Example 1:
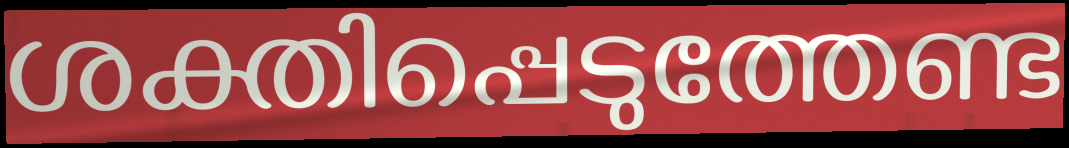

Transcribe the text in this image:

ശക്തിപ്പെടുത്തേണ്ട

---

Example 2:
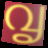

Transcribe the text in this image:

വൃ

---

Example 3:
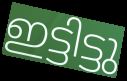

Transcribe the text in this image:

ഇട്ടിട്ടു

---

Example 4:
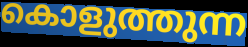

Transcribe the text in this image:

കൊളുത്തുന്ന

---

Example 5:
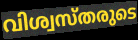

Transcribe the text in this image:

വിശ്വസ്തരുടെ